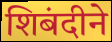
शिबंदीने